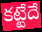
కట్టేదే